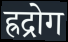
ह्रद्रोग